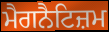
ਮੈਗਨੈਟਿਜ਼ਮ